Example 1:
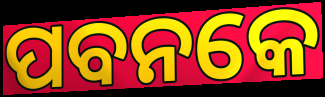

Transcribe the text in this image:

ପବନକେ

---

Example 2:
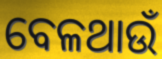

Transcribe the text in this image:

ବେଳଥାଉଁ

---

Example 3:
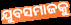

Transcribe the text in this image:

ଯୁବସମାଜକୁ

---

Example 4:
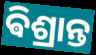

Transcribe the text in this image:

ଵିଶ୍ରାନ୍ତ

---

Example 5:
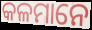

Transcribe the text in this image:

କଳମାନେ